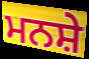
ਮਨਸ਼ੇ